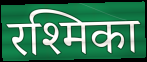
रश्मिका